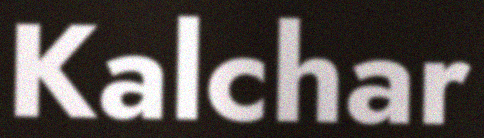
Kalchar